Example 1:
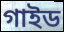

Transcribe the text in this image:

গাইড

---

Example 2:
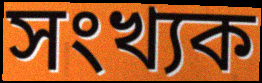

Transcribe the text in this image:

সংখ্যক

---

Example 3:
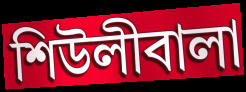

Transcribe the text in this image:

শিউলীবালা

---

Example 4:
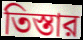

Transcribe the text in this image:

তিস্তার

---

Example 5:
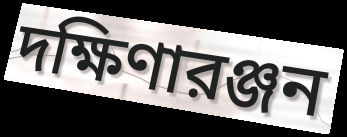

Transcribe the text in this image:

দক্ষিণারঞ্জন